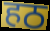
हठ